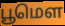
பூமௌ